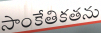
సాంకేతికతను